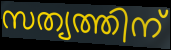
സത്യത്തിന്